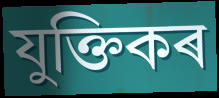
যুক্তিকৰ